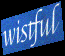
wistful